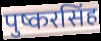
पुष्करसिंह